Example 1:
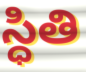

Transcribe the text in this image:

స్ధితి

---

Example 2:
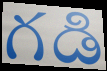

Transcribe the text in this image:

గడి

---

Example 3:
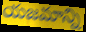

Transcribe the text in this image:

యజమాన్ని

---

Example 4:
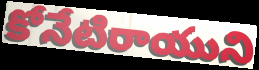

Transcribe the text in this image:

కోనేటిరాయుని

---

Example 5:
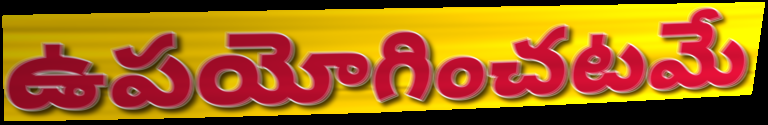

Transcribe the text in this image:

ఉపయోగించటమే